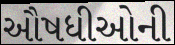
ઔષધીઓની